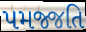
પમજ્જતિ